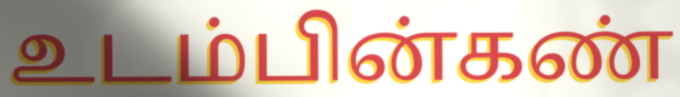
உடம்பின்கண்